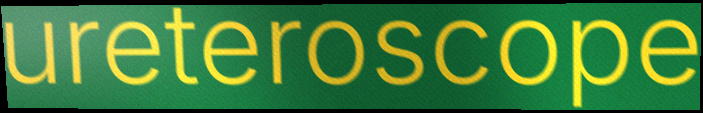
ureteroscope